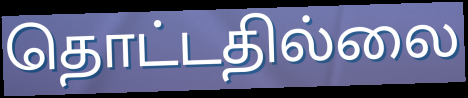
தொட்டதில்லை